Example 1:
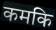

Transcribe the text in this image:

कमकि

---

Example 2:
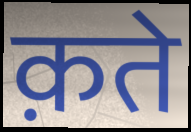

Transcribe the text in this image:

क़ते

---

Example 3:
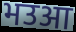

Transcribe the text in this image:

भउआ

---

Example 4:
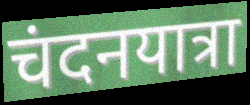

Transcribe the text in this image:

चंदनयात्रा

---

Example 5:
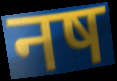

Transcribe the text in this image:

नष